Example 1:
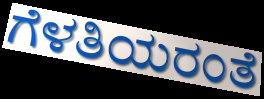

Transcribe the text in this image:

ಗೆಳತಿಯರಂತೆ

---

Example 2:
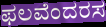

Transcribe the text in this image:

ಫಲವೆಂದರಸ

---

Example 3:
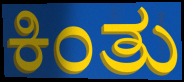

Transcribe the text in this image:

ಕಿಂತು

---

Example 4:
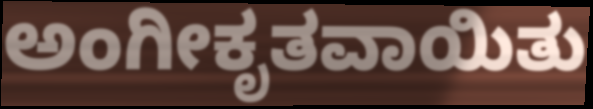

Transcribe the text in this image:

ಅಂಗೀಕೃತವಾಯಿತು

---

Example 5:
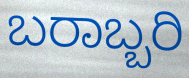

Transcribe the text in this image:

ಬರಾಬ್ಬರಿ